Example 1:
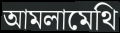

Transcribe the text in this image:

আমলামেথি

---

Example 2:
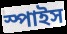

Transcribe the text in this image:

স্পাইস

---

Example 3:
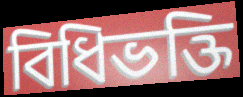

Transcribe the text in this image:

বিধিভক্তি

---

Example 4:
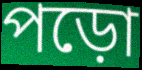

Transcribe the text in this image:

পড়ো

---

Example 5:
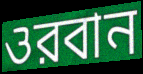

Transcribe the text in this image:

ওরবান